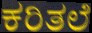
ಕರಿತಲೆ